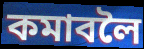
কমাবলৈ